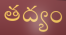
తద్యం